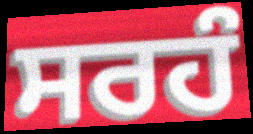
ਸਰਹੰ